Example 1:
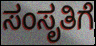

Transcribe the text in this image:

ಸಂಸೃತಿಗೆ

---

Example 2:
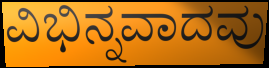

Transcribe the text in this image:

ವಿಭಿನ್ನವಾದವು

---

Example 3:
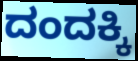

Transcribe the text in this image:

ದಂದಕ್ಕಿ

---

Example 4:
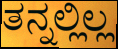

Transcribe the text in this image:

ತನ್ನಲ್ಲಿಲ್ಲ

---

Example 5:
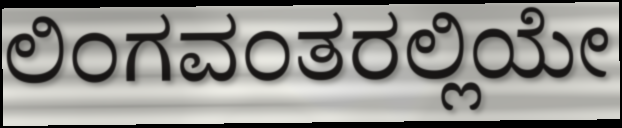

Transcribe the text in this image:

ಲಿಂಗವಂತರಲ್ಲಿಯೇ